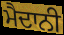
ਮੈਦਾਨੀ